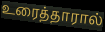
உரைத்தாரால்